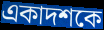
একাদশকে